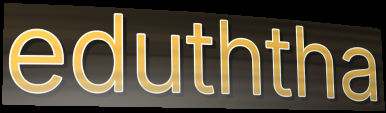
eduththa